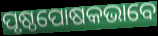
ପୃଷ୍ଠପୋଷକଭାବେ